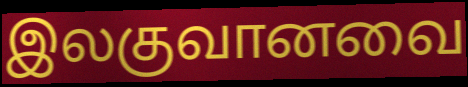
இலகுவானவை